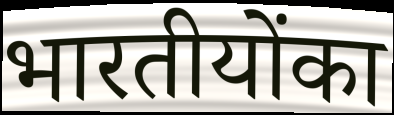
भारतीयोंका